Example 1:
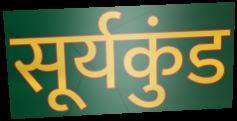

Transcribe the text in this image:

सूर्यकुंड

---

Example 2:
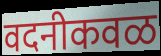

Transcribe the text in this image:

वदनीकवळ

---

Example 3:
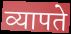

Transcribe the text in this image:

व्यापते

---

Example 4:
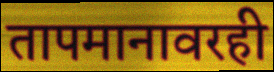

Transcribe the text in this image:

तापमानावरही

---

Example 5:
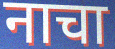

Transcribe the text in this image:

नाचा